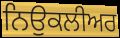
ਨਿਉਕਲੀਅਰ